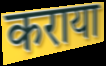
कराया